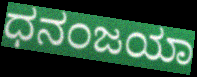
ಧನಂಜಯಾ